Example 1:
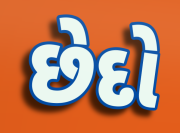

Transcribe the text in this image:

છેદો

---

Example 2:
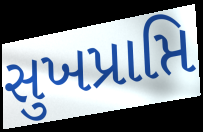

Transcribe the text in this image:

સુખપ્રાપ્તિ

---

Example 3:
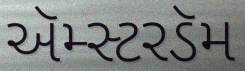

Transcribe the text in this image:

ઍમ્સ્ટરડૅમ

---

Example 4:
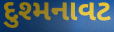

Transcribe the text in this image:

દુશ્મનાવટ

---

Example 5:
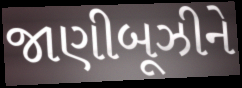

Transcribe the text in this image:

જાણીબૂઝીને